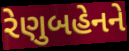
રેણુબહેનને